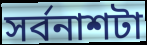
সর্বনাশটা